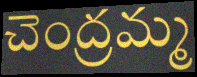
చెంద్రమ్మ